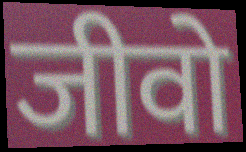
जीवो